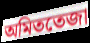
অমিততেজা